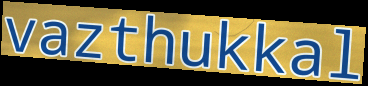
vazthukkal